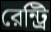
রেন্ট্রি